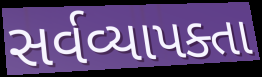
સર્વવ્યાપક્તા